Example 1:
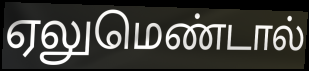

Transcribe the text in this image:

ஏலுமெண்டால்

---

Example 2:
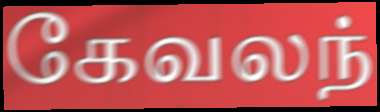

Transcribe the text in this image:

கேவலந்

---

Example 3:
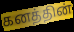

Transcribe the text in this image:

கனத்தின்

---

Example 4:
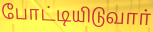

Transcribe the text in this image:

போட்டியிடுவார்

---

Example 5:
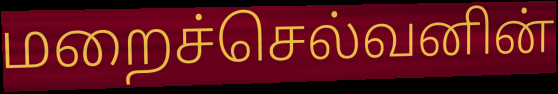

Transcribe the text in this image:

மறைச்செல்வனின்